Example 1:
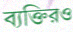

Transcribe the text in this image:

ব্যক্তিরও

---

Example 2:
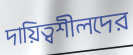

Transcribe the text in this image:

দায়িত্বশীলদের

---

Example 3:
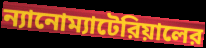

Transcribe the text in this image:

ন্যানোম্যাটেরিয়ালের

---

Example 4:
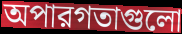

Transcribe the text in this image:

অপারগতাগুলো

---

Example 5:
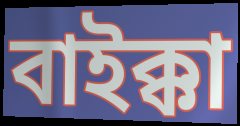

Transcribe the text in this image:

বাইক্কা